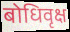
बोधिवृक्ष